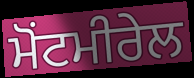
ਮੋਂਟਮੀਰੇਲ